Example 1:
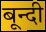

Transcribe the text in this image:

बून्दी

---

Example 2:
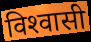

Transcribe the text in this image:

विश्‍वासी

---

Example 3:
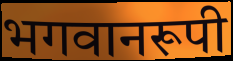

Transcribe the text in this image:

भगवानरूपी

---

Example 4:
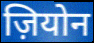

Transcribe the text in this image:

ज़ियोन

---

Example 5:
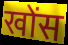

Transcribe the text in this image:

खोंस